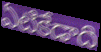
ఏటికేడాది